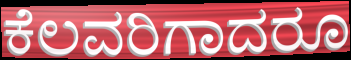
ಕೆಲವರಿಗಾದರೂ